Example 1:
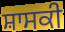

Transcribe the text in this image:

ਸ਼ਾਸਕੀ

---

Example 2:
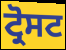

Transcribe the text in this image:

ਟ੍ਰੋਸਟ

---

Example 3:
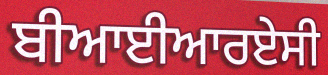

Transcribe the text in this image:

ਬੀਆਈਆਰਏਸੀ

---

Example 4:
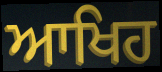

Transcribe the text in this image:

ਆਖਿਹ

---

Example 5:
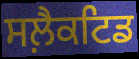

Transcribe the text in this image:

ਸਲ਼ੈਕਟਿਡ